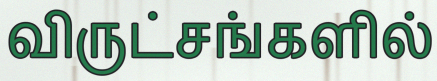
விருட்சங்களில்